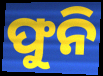
ଫୁନି